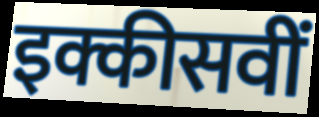
इक्‍कीसवीं